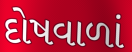
દોષવાળાં